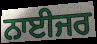
ਨਾਈਜਰ